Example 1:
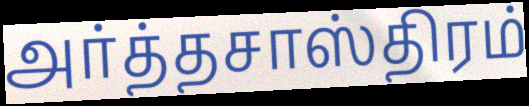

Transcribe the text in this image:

அர்த்தசாஸ்திரம்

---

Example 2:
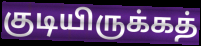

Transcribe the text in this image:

குடியிருக்கத்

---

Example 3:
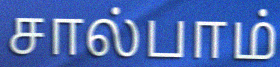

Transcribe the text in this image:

சால்பாம்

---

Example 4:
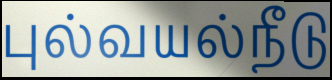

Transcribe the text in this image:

புல்வயல்நீடு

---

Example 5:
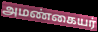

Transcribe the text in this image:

அமண்கையர்